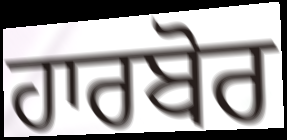
ਹਾਰਬੋਰ